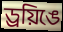
ড্রয়িঙে